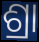
ଶ୍ରା